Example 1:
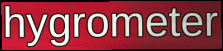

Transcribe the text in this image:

hygrometer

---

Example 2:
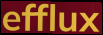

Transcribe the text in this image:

efflux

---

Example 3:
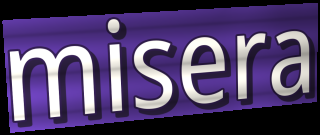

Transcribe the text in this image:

misera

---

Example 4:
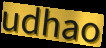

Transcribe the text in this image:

udhao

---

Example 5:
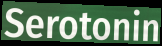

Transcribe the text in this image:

Serotonin